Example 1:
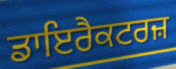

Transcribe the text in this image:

ਡਾਇਰੈਕਟਰਜ਼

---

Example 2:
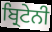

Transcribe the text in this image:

ਬ੍ਰਿਟੇਨੀ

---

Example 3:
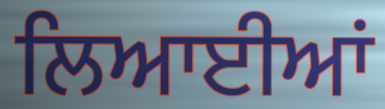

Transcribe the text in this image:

ਲਿਆਈਆਂ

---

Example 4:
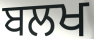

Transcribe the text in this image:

ਬਲਖ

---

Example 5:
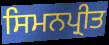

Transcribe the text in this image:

ਸਿਮਨਪ੍ਰੀਤ